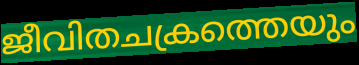
ജീവിതചക്രത്തെയും